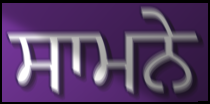
ਸਾਮਨੇ